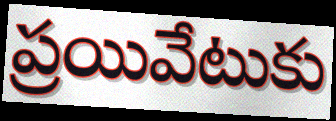
ప్రయివేటుకు